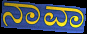
ನಾವಾ